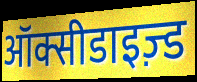
ऑक्सीडाइज़्ड